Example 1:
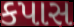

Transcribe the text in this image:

કપાસ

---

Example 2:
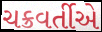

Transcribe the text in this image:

ચક્રવર્તીએ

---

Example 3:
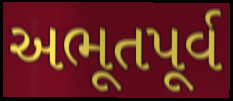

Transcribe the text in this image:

અભૂતપૂર્વ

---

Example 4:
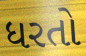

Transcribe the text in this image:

ધરતો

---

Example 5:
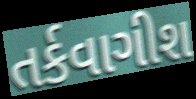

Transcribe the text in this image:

તર્કવાગીશ